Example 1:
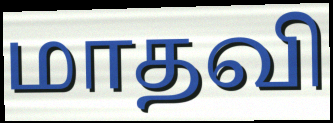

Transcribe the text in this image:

மாதவி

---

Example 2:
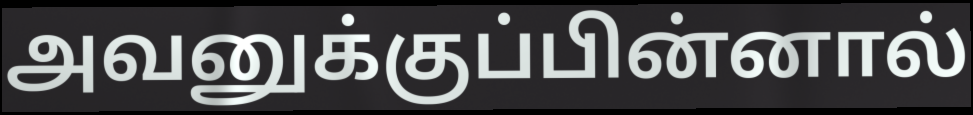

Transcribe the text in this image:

அவனுக்குப்பின்னால்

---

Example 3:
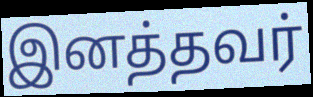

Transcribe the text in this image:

இனத்தவர்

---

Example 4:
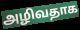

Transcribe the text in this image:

அழிவதாக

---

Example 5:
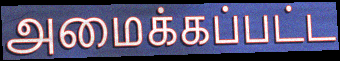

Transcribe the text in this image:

அமைக்கப்பட்ட